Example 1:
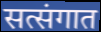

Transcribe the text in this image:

सत्संगात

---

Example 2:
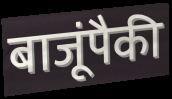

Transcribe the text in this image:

बाजूंपैकी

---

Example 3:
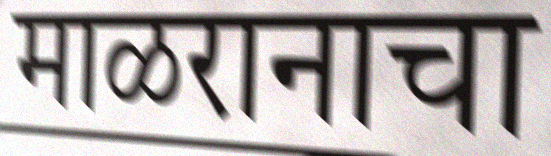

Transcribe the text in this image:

माळरानाचा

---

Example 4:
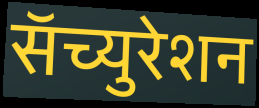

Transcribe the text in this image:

सॅच्युरेशन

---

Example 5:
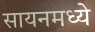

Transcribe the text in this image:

सायनमध्ये